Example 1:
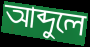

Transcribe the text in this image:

আব্দুলে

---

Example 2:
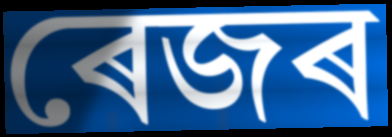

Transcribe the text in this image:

ৰেজৰ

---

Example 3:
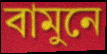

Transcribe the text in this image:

বামুনে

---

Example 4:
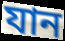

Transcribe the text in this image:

যান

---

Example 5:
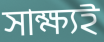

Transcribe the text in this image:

সাক্ষ্যই